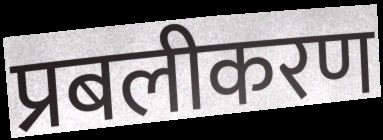
प्रबलीकरण